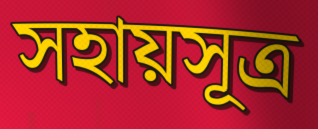
সহায়সূত্র